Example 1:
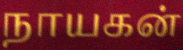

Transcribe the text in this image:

நாயகன்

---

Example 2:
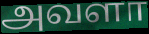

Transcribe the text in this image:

அவளா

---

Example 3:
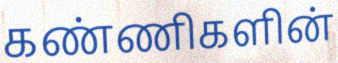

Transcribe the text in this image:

கண்ணிகளின்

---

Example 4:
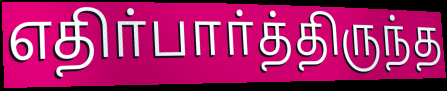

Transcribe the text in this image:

எதிர்பார்த்திருந்த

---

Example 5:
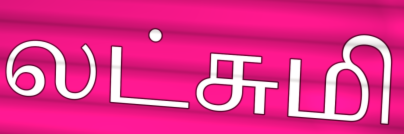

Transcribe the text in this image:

லட்சுமி